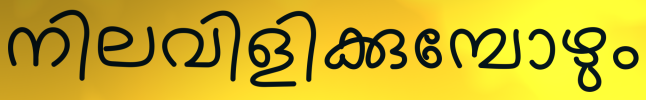
നിലവിളിക്കുമ്പോഴും